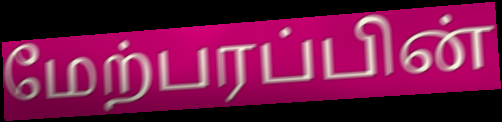
மேற்பரப்பின்